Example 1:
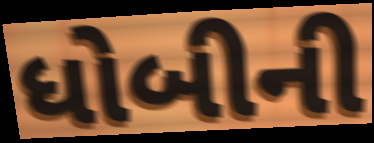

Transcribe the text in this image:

ધોબીની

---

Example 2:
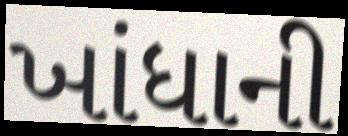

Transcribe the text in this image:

ખાંધાની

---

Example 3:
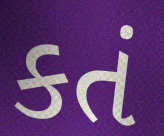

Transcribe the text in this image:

કતં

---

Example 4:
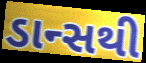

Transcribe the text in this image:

ડાન્સથી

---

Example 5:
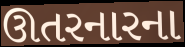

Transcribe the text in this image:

ઊતરનારના